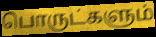
பொருட்களும்